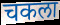
चकला